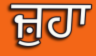
ਜ਼ੁਹਾ